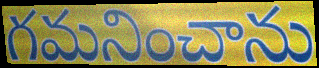
గమనించాను